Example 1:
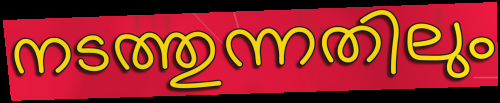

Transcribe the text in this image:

നടത്തുന്നതിലും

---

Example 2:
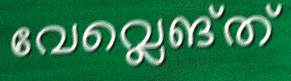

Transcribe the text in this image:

വേവ്ലെങ്ത്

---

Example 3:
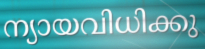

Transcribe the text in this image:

ന്യായവിധിക്കു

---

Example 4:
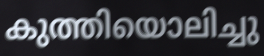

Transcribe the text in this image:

കുത്തിയൊലിച്ചു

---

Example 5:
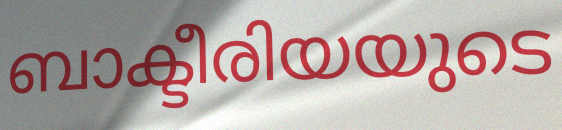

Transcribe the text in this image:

ബാക്ടീരിയയുടെ